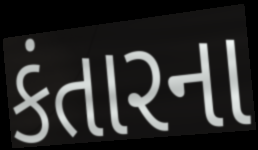
કંતારના